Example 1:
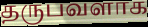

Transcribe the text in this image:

தருபவளாக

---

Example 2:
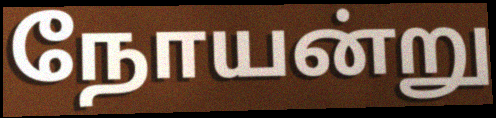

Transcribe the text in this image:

நோயன்று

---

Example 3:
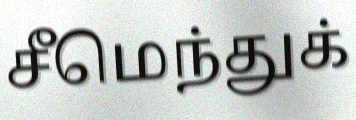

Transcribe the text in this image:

சீமெந்துக்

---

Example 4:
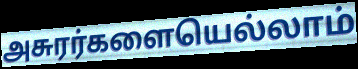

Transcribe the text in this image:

அசுரர்களையெல்லாம்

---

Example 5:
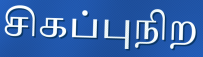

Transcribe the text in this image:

சிகப்புநிற